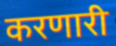
करणारी